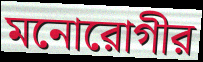
মনোরোগীর